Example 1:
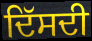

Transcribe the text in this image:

ਦਿੱਸਦੀ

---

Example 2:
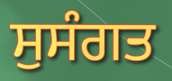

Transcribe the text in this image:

ਸੁਸੰਗਤ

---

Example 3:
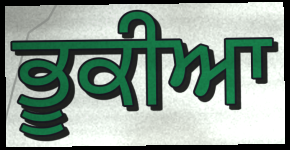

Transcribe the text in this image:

ਭੂਕੀਆ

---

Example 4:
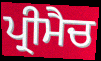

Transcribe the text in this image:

ਪ੍ਰੀਮੈਚ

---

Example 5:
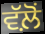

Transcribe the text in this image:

ਵੱਲ਼ੋਂ